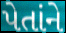
પેતાંને